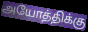
அயோத்திக்கு